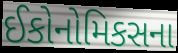
ઈકોનોમિકસના